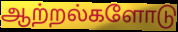
ஆற்றல்களோடு